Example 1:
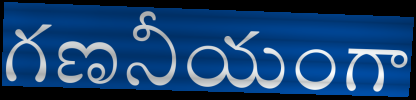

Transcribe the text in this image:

గణనీయంగా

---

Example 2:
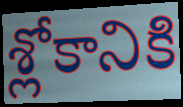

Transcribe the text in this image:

శ్లోకానికి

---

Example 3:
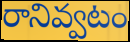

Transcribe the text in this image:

రానివ్వటం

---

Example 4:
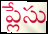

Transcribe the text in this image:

ప్లేసు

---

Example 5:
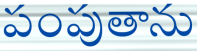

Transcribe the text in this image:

పంపుతాను